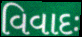
વિવાદઃ